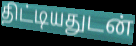
திட்டியதுடன்